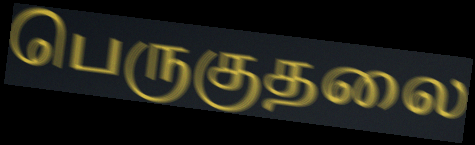
பெருகுதலை